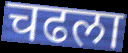
चढला